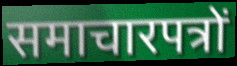
समाचारपत्रों